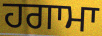
ਹਗਾਮਾ